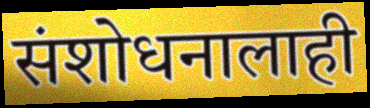
संशोधनालाही